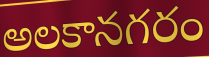
అలకానగరం